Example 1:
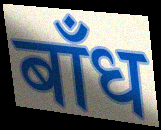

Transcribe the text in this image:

बाँध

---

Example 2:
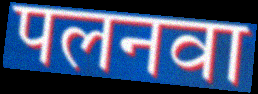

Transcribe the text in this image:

पलनवा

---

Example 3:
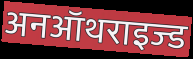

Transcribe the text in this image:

अनऑथराइज्ड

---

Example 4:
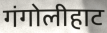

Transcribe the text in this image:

गंगोलीहाट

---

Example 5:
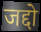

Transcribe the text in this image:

जद्दो